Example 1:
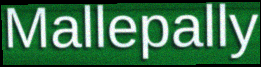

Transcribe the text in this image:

Mallepally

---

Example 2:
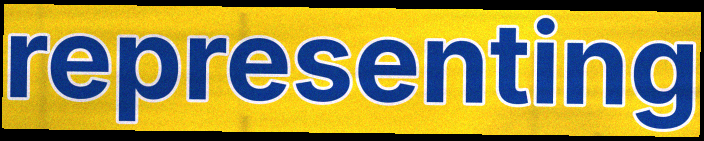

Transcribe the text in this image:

representing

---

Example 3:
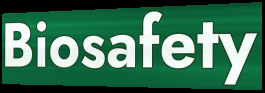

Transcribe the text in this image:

Biosafety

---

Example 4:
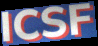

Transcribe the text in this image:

ICSF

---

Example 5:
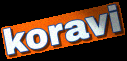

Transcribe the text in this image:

koravi